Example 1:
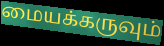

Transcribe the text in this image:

மையக்கருவும்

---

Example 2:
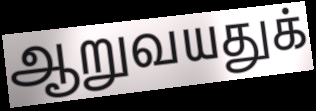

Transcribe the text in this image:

ஆறுவயதுக்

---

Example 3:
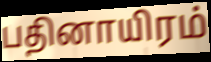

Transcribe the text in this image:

பதினாயிரம்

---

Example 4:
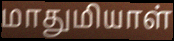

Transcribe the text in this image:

மாதுமியாள்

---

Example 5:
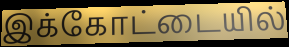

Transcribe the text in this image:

இக்கோட்டையில்